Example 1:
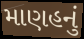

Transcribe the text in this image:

માણહનું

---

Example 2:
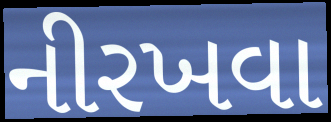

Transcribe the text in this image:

નીરખવા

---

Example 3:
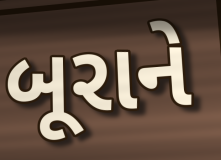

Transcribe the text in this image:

બૂરાને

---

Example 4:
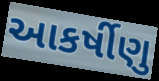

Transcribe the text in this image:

આકર્ષીણુ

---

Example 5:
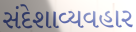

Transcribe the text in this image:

સંદેશાવ્યવહાર